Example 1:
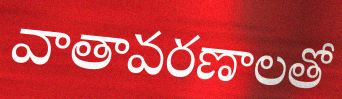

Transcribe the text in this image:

వాతావరణాలతో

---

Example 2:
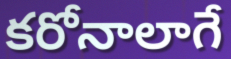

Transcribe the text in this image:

కరోనాలాగే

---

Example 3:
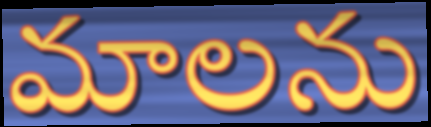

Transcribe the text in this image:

మాలను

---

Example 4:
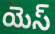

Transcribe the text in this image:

యెస్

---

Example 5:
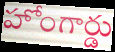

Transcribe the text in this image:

హోంగార్డు